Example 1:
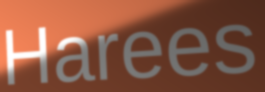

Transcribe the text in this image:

Harees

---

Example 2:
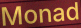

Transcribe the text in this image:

Monad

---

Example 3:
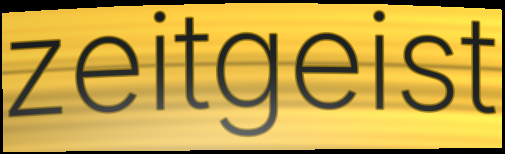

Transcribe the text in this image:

zeitgeist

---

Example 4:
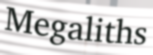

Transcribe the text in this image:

Megaliths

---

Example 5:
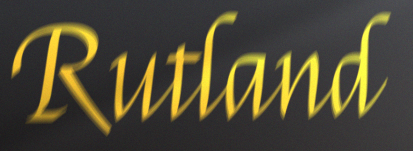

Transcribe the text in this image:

Rutland